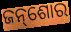
ଜନ୍‌ଶୋର